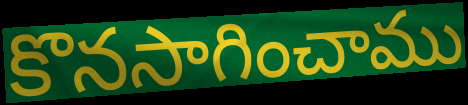
కొనసాగించాము